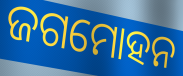
ଜଗମୋହନ